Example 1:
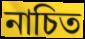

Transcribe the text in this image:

নাচিত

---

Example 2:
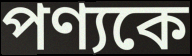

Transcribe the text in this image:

পণ্যকে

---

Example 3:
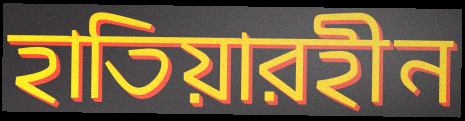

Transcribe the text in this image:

হাতিয়ারহীন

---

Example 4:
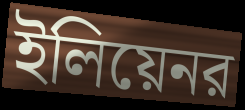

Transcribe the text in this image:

ইলিয়েনর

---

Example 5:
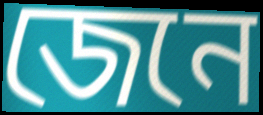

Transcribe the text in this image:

জেনে